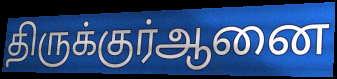
திருக்குர்ஆனை